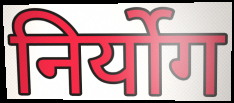
निर्योग